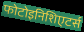
फोटोइनिशिएटर्स